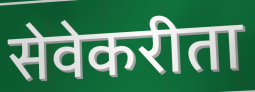
सेवेकरीता